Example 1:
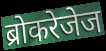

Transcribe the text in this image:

ब्रोकरेजेज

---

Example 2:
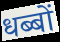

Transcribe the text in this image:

धब्बों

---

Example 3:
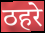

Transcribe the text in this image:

ठहरे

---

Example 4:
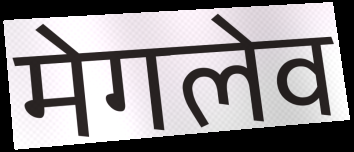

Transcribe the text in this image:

मेगलेव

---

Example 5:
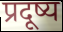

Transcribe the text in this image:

प्रदूष्य